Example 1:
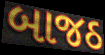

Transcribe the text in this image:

બાજઠ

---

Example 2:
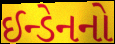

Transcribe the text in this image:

ઈન્ડેનનો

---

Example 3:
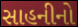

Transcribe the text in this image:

સાહનીનો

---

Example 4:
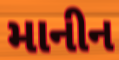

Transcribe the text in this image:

માનીન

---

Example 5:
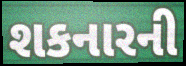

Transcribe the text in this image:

શકનારની